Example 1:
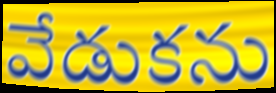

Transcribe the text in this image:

వేడుకను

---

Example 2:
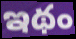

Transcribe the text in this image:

ఇథం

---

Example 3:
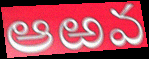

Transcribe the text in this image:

ఆఱవ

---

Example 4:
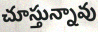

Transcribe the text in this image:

చూస్తున్నావు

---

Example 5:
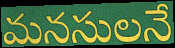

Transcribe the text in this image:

మనసులనే